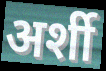
अर्शी